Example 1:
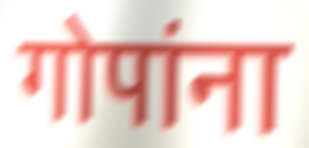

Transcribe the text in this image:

गोपांना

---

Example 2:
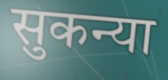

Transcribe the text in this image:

सुकन्या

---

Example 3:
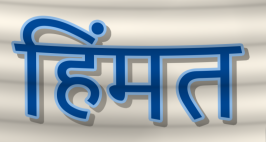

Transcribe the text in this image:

हिंमत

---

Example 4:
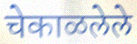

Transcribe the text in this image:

चेकाळलेले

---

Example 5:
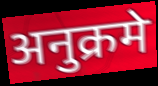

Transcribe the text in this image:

अनुक्रमे